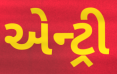
એન્ટ્રી